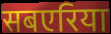
सबएरिया